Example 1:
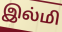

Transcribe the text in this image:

இல்மி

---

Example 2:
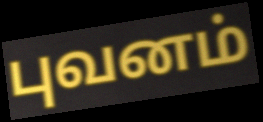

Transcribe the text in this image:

புவனம்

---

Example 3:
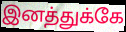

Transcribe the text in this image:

இனத்துக்கே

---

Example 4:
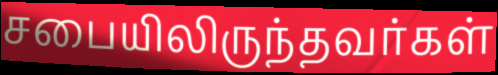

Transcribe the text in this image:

சபையிலிருந்தவர்கள்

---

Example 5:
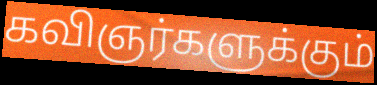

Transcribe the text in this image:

கவிஞர்களுக்கும்